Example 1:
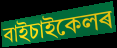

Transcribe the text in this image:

বাইচাইকেলৰ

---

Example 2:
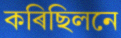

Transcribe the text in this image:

কৰিছিলনে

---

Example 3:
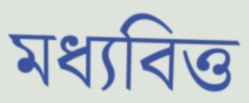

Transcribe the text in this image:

মধ্যবিত্ত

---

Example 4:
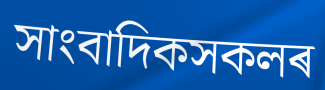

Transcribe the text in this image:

সাংবাদিকসকলৰ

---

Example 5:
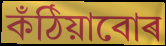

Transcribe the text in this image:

কঁঠিয়াবোৰ